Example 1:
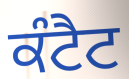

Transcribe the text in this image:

ਕੰਟੈਟ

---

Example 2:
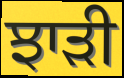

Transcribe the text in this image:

ਝਾੜੀ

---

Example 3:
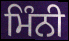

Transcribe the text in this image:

ਮਿੰਨੀ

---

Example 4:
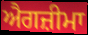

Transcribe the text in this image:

ਐਗਜ਼ੀਮਾ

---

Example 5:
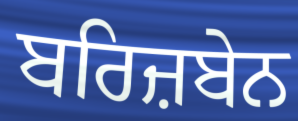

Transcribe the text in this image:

ਬਰਿਜ਼ਬੇਨ